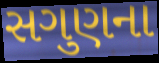
સગુણના